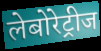
लेबोरेट्रीज